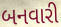
બનવારી